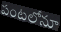
పంటలోనూ